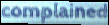
complained